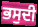
ਭਸੁਦੀ